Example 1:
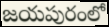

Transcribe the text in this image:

జయపురంలో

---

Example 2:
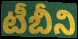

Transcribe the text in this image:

టీబీని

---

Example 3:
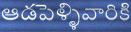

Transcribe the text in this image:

ఆడపెళ్ళివారికి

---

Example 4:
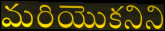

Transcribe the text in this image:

మరియొకనిని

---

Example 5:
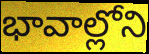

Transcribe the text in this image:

భావాల్లోని